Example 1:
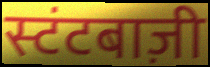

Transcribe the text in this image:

स्टंटबाज़ी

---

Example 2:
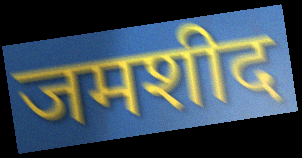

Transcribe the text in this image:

जमशीद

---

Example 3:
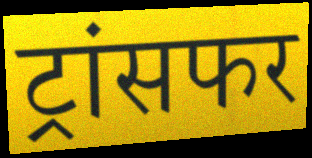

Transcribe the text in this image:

ट्रांसफर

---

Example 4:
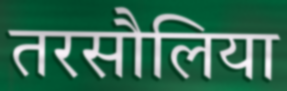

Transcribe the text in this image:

तरसौलिया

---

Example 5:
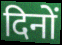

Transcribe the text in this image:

दिनों